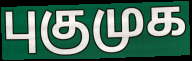
புகுமுக